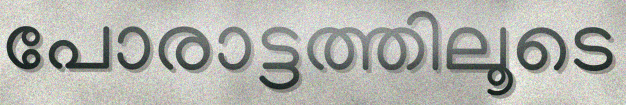
പോരാട്ടത്തിലൂടെ